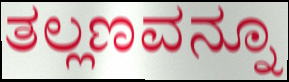
ತಲ್ಲಣವನ್ನೂ